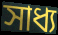
সাধ্য